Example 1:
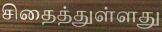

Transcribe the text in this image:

சிதைத்துள்ளது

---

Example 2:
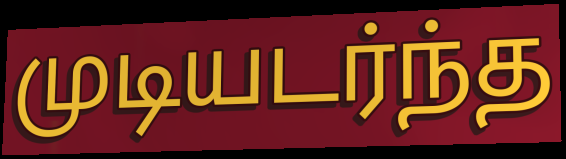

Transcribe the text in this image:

முடியடர்ந்த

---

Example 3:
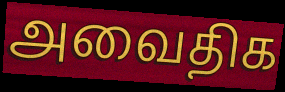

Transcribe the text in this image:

அவைதிக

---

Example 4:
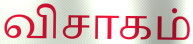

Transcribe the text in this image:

விசாகம்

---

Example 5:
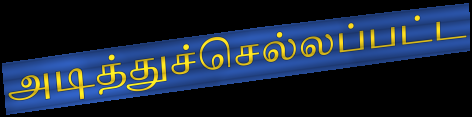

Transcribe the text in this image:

அடித்துச்செல்லப்பட்ட